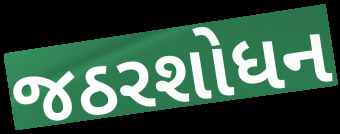
જઠરશોધન